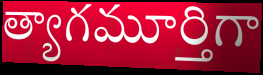
త్యాగమూర్తిగా